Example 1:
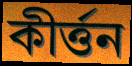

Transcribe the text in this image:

কীর্ত্তন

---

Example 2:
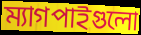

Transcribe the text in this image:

ম্যাগপাইগুলো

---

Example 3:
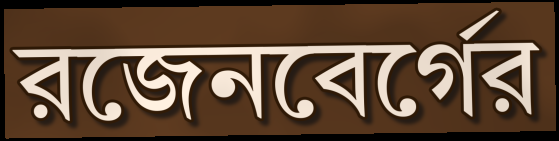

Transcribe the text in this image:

রজেনবের্গের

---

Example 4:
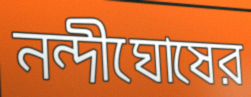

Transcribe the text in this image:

নন্দীঘোষের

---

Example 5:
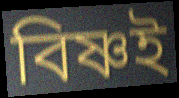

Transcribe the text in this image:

বিষ্ণই